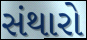
સંથારો